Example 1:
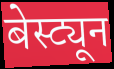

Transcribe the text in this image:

बेस्ट्यून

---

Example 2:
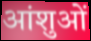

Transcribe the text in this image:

आंशुओं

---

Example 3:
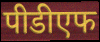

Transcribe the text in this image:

पीडीएफ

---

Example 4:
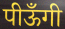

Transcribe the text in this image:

पीऊँगी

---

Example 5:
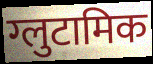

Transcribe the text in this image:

ग्लुटामिक